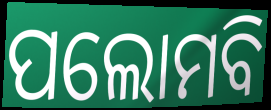
ପଲୋମବି